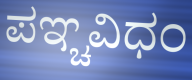
ಪಞ್ಚವಿಧಂ